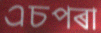
এচপৰা